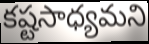
కష్టసాధ్యమని